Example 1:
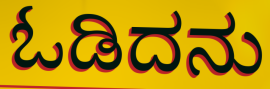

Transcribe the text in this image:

ಓಡಿದನು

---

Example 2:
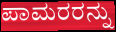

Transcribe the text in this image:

ಪಾಮರರನ್ನು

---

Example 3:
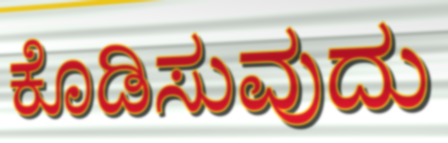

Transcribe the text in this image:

ಕೊಡಿಸುವುದು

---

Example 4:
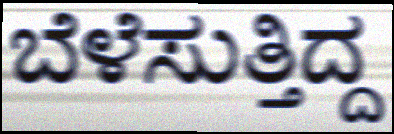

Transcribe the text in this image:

ಬೆಳೆಸುತ್ತಿದ್ದ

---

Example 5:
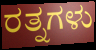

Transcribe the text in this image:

ರತ್ನಗಳು